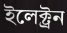
ইলেক্ট্রন